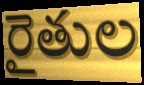
రైతుల